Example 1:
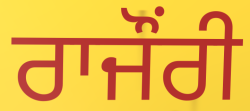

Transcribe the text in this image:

ਰਾਜੌਂਰੀ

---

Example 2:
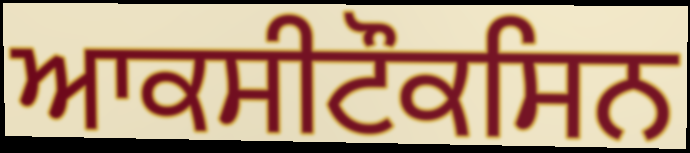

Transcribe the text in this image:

ਆਕਸੀਟੌਕਸਿਨ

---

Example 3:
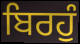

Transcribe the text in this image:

ਬਿਰਹੁੰ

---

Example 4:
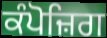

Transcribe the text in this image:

ਕੰਪੋਜ਼ਿਗ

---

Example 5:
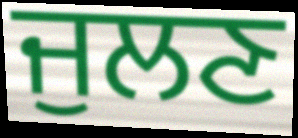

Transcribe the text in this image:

ਜੁਲਣ